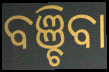
ବଞ୍ଚିବା